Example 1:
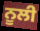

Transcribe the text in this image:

ਨੂਲੀ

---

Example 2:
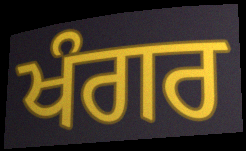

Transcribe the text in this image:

ਖੰਗਰ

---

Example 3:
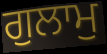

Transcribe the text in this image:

ਗੁਲਾਮੁ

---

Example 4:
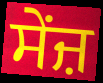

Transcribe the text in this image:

ਸੇਂਜ਼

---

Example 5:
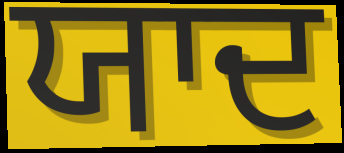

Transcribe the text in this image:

ਯਾਦ